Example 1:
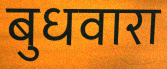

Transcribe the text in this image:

बुधवारा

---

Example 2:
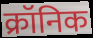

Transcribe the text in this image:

क्रॉनिक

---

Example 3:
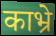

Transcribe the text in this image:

काभ्रे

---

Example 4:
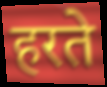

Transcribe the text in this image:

हरते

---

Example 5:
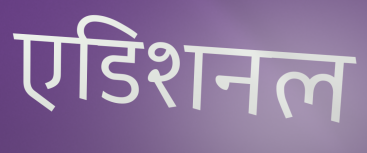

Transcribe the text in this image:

एडिशनल